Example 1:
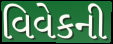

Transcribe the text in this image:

વિવેકની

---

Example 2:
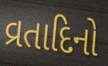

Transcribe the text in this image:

વ્રતાદિનો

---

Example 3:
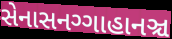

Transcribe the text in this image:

સેનાસનગ્ગાહાનઞ્ચ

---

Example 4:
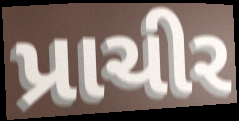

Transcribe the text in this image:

પ્રાચીર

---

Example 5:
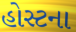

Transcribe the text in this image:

હોસ્ટના